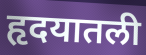
हृदयातली